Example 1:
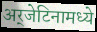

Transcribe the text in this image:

अर्जेटिनामध्ये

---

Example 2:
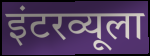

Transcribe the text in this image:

इंटरव्यूला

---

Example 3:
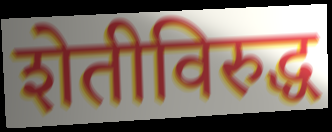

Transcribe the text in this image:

शेतीविरुद्ध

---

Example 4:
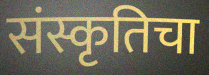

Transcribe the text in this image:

संस्कृतिचा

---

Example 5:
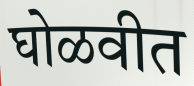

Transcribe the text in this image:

घोळवीत